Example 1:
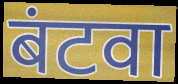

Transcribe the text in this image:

बंटवा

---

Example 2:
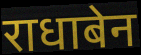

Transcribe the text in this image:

राधाबेन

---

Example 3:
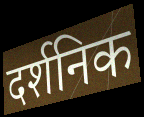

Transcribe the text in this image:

दर्शनिक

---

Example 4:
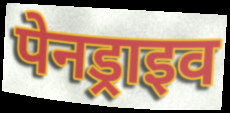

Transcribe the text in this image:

पेनड्राइव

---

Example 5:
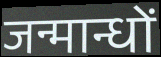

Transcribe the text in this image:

जन्मान्धों